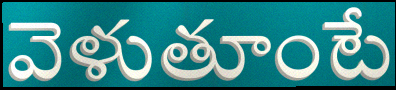
వెళుతూంటే